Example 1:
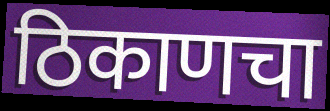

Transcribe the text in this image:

ठिकाणचा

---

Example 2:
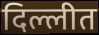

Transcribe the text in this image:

दिल्लीत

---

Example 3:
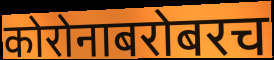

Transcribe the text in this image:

कोरोनाबरोबरच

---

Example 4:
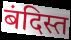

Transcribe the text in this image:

बंदिस्त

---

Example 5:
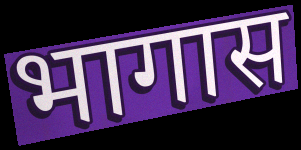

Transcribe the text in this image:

भागास